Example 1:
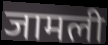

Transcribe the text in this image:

जामली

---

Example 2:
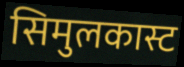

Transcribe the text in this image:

सिमुलकास्ट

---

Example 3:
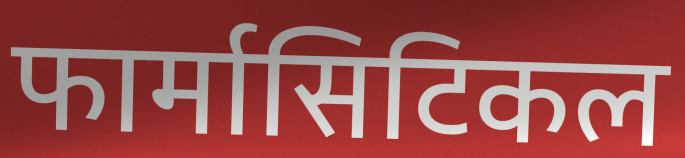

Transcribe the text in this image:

फार्मासिटिकल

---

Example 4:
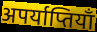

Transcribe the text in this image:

अपर्याप्तियाँ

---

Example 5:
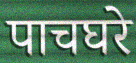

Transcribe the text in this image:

पाचघरे